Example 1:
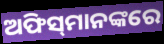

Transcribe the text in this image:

ଅଫିସ୍‌ମାନଙ୍କରେ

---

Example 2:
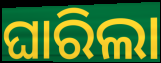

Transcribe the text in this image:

ଘାରିଲା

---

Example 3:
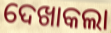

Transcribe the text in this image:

ଦେଖାକଲା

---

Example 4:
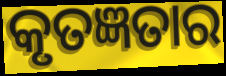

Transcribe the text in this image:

କୃତଜ୍ଞତାର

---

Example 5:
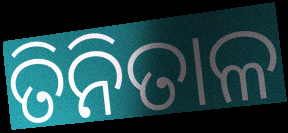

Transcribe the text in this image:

ତିନିତାଳ